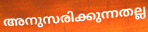
അനുസരിക്കുന്നതല്ല